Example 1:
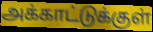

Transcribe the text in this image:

அக்காட்டுக்குள்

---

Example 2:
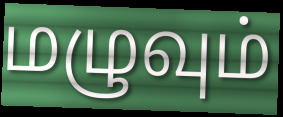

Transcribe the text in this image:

மழுவும்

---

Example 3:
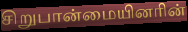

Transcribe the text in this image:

சிறுபான்மையினரின்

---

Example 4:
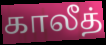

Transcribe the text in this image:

காலீத்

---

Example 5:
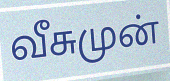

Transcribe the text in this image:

வீசுமுன்